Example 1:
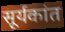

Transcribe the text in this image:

सूर्यकांत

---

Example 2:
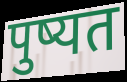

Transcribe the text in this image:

पुष्यत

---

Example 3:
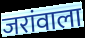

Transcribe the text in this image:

जरांवाला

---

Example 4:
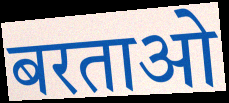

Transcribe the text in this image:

बरताओ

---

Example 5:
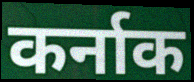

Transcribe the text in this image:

कर्नाक